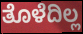
ತೊಳೆದಿಲ್ಲ